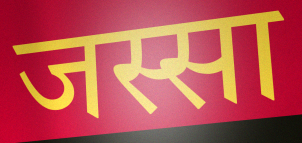
जस्सा